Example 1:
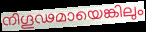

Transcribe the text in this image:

നിഗൂഢമായെങ്കിലും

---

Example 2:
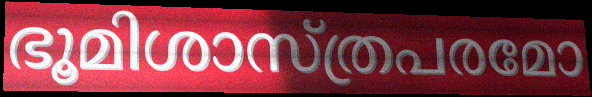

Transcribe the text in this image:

ഭൂമിശാസ്ത്രപരമോ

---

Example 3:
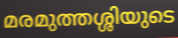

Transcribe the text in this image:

മരമുത്തശ്ശിയുടെ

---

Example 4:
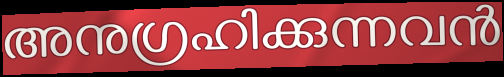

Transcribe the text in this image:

അനുഗ്രഹിക്കുന്നവൻ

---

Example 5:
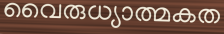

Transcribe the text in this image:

വൈരുധ്യാത്മകത